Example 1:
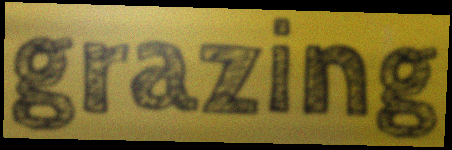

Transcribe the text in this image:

grazing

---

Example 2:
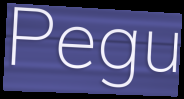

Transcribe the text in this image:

Pegu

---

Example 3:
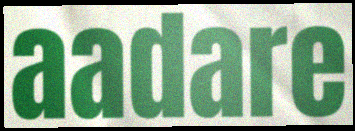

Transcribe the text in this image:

aadare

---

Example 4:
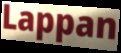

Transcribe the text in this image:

Lappan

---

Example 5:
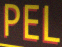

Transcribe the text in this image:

PEL